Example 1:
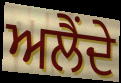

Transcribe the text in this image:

ਅਲੈਂਦੇ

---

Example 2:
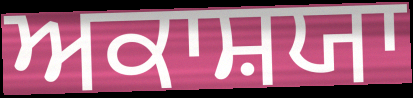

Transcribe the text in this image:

ਅਕਾਸ਼ਯਾ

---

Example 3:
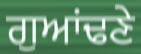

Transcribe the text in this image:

ਗੁਆਂਢਣੇ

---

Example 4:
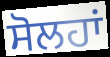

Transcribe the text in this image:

ਸੋਲਹਾਂ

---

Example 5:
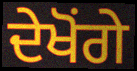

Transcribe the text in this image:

ਦੇਖੋਂਗੇ